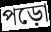
পড়ো